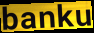
banku